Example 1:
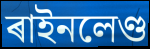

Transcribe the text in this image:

ৰাইনলেণ্ড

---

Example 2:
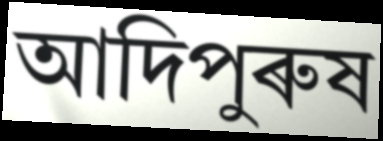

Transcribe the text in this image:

আদিপুৰুষ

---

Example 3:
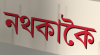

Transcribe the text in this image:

নথকাকৈ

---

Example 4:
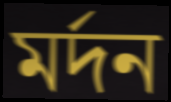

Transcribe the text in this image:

মৰ্দন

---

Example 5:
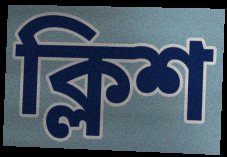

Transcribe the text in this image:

ক্লিশ